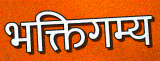
भक्तिगम्य